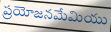
ప్రయోజనమేమియు